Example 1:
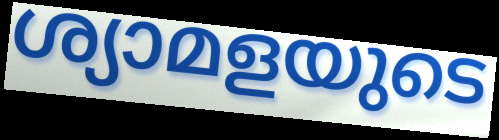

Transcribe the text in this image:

ശ്യാമളയുടെ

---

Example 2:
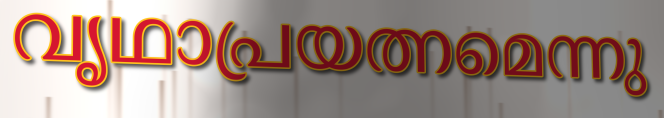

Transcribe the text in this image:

വൃഥാപ്രയത്നമെന്നു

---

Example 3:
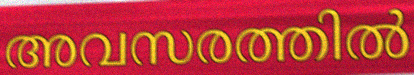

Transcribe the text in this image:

അവസരത്തിൽ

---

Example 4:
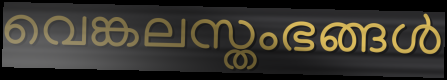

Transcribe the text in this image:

വെങ്കലസ്തംഭങ്ങൾ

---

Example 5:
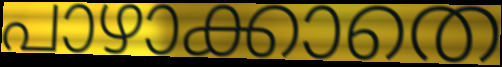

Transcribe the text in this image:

പാഴാക്കാതെ